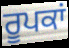
ਰੂਪਕਾਂ